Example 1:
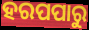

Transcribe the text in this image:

ହରପପାରୁ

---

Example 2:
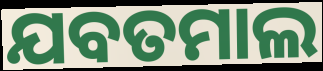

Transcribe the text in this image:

ଯବତମାଲ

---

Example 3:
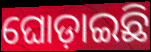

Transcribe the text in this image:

ଘୋଡ଼ାଇଛି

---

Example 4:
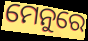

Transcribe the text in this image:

ମେନୁରେ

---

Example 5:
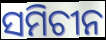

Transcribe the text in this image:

ସମିଚୀନ